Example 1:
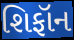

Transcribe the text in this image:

શિફૉન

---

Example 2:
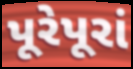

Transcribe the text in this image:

પૂરેપૂરાં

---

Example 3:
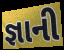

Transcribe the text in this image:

જ્ઞાની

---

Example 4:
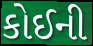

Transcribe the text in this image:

કોઈની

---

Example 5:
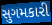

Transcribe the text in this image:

સુગમકારી